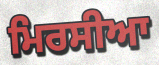
ਮਿਰਸੀਆ